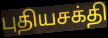
புதியசக்தி